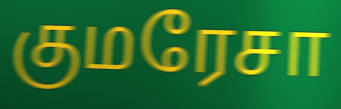
குமரேசா